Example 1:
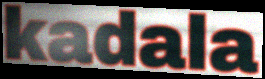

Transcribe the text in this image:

kadala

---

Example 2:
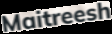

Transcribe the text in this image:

Maitreesh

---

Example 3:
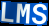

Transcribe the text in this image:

LMS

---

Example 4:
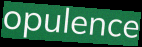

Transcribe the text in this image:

opulence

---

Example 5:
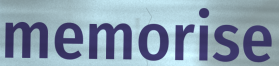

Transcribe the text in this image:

memorise